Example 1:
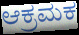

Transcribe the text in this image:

ಆಕ್ರಮಕ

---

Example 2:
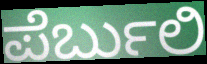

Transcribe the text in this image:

ಪೆರ್ಬುಲಿ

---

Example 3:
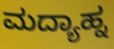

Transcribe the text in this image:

ಮದ್ಯಾಹ್ನ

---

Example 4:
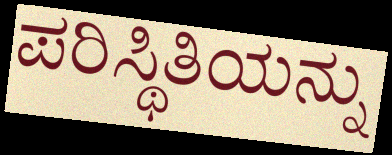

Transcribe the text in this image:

ಪರಿಸ್ಥಿತಿಯನ್ನು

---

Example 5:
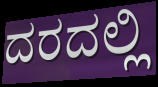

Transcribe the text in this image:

ದರದಲ್ಲಿ